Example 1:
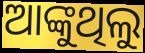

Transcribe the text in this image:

ଆଙ୍କୁଥିଲୁ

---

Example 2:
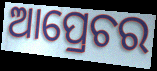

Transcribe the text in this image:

ଆପ୍ରେଚର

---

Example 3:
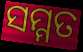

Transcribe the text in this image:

ସମ୍ମତ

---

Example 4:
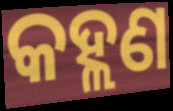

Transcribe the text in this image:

କହ୍ଲଣ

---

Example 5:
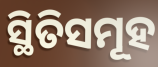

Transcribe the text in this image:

ସ୍ଥିତିସମୂହ